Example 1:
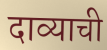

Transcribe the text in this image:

दाव्याची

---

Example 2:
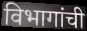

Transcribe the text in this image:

विभागांची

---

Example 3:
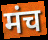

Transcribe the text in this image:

मंच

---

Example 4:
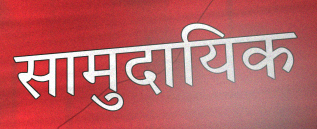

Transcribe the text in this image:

सामुदायिक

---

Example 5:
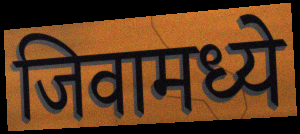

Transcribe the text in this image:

जिवामध्ये